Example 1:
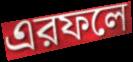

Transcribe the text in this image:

এরফলে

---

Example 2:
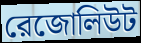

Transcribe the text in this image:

রেজোলিউট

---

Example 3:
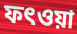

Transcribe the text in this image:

ফৎওয়া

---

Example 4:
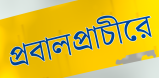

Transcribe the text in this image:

প্রবালপ্রাচীরে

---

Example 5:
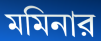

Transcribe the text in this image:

মমিনার